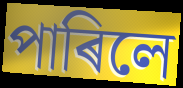
পাৰিলে